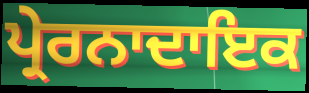
ਪ੍ਰੇਰਨਾਦਾਇਕ